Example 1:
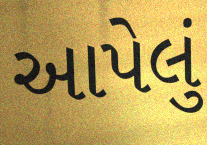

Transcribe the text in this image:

આપેલું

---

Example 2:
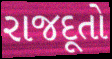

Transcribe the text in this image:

રાજદૂતો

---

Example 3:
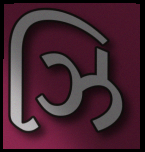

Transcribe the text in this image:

ઝિ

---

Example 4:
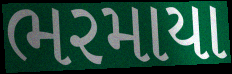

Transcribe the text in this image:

ભરમાયા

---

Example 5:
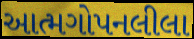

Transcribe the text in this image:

આત્મગોપનલીલા